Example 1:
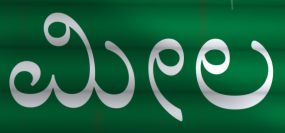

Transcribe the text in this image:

ಮೀಲ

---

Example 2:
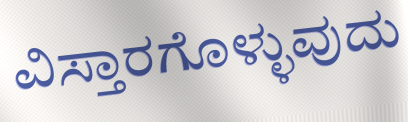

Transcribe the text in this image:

ವಿಸ್ತಾರಗೊಳ್ಳುವುದು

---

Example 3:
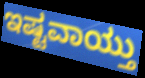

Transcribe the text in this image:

ಇಷ್ಟವಾಯ್ತು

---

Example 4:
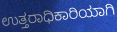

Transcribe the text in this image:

ಉತ್ತರಾಧಿಕಾರಿಯಾಗಿ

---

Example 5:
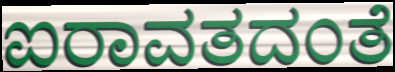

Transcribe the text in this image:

ಐರಾವತದಂತೆ